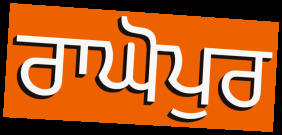
ਰਾਘੋਪੁਰ